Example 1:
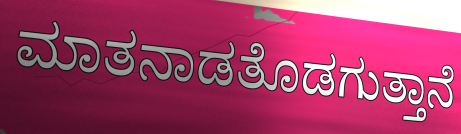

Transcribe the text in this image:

ಮಾತನಾಡತೊಡಗುತ್ತಾನೆ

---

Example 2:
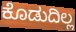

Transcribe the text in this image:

ಕೊಡುದಿಲ್ಲ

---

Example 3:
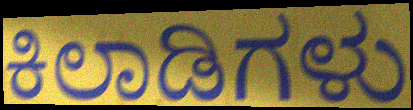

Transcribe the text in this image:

ಕಿಲಾಡಿಗಳು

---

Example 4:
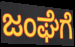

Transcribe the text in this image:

ಜಂಘೆಗೆ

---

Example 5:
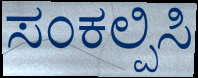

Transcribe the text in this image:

ಸಂಕಲ್ಪಿಸಿ